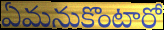
ఏమనుకొంటారో